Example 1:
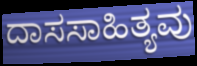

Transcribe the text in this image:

ದಾಸಸಾಹಿತ್ಯವು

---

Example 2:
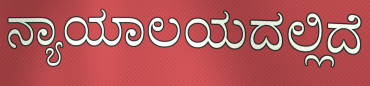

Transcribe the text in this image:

ನ್ಯಾಯಾಲಯದಲ್ಲಿದೆ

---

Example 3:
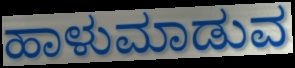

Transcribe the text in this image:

ಹಾಳುಮಾಡುವ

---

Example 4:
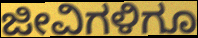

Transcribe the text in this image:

ಜೀವಿಗಳಿಗೂ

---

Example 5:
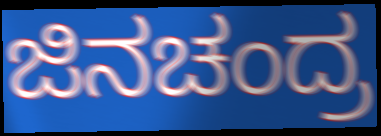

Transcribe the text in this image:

ಜಿನಚಂದ್ರ